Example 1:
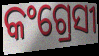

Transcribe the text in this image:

କଂଗ୍ରେସୀ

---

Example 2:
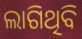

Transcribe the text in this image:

ଲାଗିଥିବି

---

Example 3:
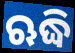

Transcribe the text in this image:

ଋଦ୍ଧି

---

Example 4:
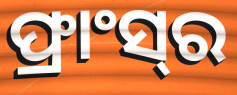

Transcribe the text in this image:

ଫ୍ରାଂସ୍‍ର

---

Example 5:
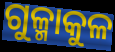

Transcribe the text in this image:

ଗୁଳ୍ମାକୁଳ